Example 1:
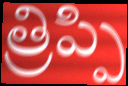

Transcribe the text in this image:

త్రిప్పి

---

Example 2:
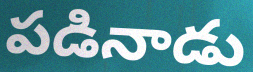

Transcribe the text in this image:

పడినాడు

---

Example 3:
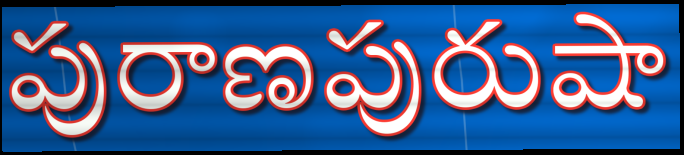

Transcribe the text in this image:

పురాణపురుషా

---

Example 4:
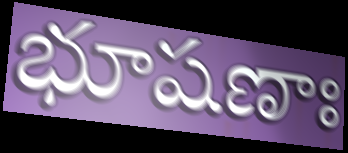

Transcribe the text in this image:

భూషణాః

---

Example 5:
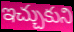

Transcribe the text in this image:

ఇచ్చుకుని